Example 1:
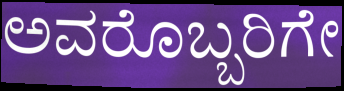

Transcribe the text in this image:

ಅವರೊಬ್ಬರಿಗೇ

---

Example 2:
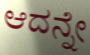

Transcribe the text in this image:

ಆದನ್ನೇ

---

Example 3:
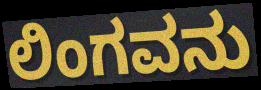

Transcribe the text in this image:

ಲಿಂಗವನು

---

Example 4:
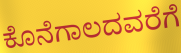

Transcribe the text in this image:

ಕೊನೆಗಾಲದವರೆಗೆ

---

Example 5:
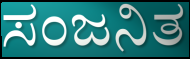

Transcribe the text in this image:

ಸಂಜನಿತ